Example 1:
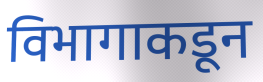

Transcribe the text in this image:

विभागाकडून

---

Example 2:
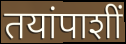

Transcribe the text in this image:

तयांपाशीं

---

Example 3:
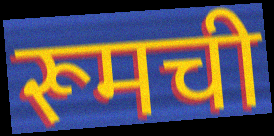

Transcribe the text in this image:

रूमची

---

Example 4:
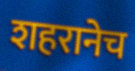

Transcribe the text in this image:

शहरानेच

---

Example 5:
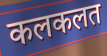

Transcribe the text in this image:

कलकलत